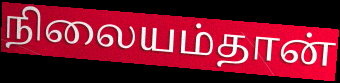
நிலையம்தான்